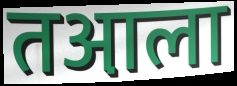
तआ़ला